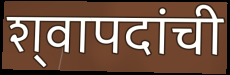
श्वापदांची